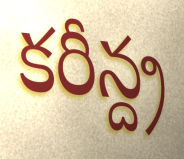
కరీన్ద్ర